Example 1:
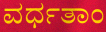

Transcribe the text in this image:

ವರ್ಧತಾಂ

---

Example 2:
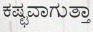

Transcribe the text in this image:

ಕಷ್ಟವಾಗುತ್ತಾ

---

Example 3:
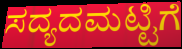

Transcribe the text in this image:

ಸದ್ಯದಮಟ್ಟಿಗೆ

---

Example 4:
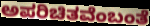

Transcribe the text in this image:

ಅಪರಿಚಿತವೆಂಬಂತೆ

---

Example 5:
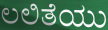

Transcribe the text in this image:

ಲಲಿತೆಯು